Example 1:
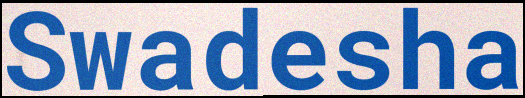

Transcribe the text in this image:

Swadesha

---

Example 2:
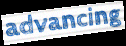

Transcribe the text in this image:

advancing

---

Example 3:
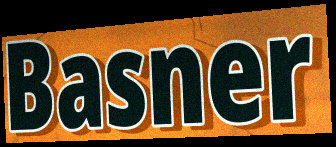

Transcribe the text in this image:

Basner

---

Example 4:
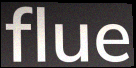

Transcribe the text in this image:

flue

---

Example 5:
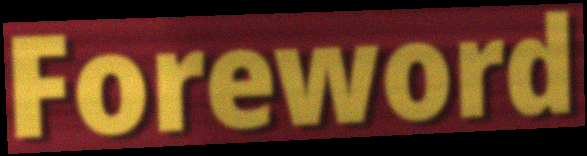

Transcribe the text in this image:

Foreword